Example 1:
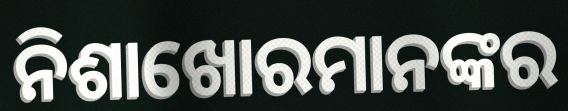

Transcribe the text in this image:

ନିଶାଖୋରମାନଙ୍କର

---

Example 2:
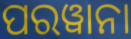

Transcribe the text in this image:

ପରୱାନା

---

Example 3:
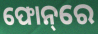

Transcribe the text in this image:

ଫୋନ୍‌ରେ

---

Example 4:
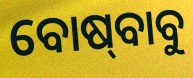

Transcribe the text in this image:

ବୋଷ୍‍ବାବୁ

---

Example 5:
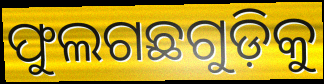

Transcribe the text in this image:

ଫୁଲଗଛଗୁଡ଼ିକୁ